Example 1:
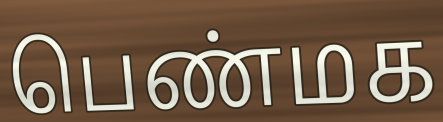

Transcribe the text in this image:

பெண்மக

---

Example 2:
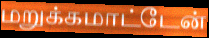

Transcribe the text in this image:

மறுக்கமாட்டேன்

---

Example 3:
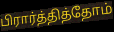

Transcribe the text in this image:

பிரார்த்தித்தோம்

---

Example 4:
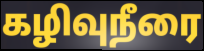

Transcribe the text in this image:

கழிவுநீரை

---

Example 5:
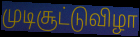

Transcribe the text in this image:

முடிசூட்டுவிழா